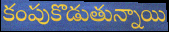
కంపుకొడుతున్నాయి